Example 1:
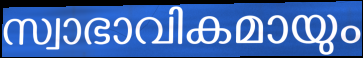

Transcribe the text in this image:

സ്വാഭാവികമായും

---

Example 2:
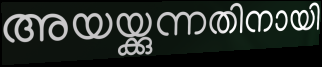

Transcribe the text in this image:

അയയ്ക്കുന്നതിനായി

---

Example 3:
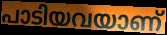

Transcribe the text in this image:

പാടിയവയാണ്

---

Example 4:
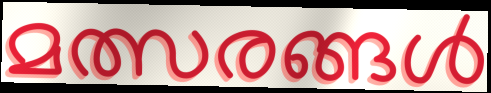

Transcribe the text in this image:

മത്സരങ്ങൾ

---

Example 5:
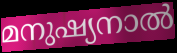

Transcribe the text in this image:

മനുഷ്യനാൽ